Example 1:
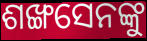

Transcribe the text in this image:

ଶଙ୍ଖସେନଙ୍କୁ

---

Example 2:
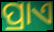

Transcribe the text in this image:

ପ୍ରାଏ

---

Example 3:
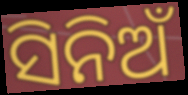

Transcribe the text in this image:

ସିନିଅଁ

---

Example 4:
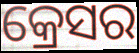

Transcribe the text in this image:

କ୍ରେସର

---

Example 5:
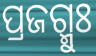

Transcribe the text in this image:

ପ୍ରଜଗ୍ମୁଃ